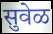
सुवेळ